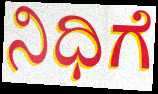
ನಿಧಿಗೆ